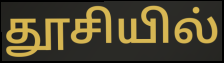
தூசியில்